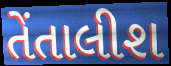
તેંતાલીશ